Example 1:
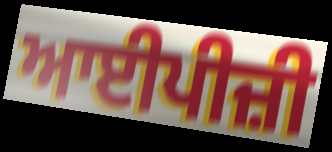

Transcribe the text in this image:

ਆਈਪੀਜ਼ੀ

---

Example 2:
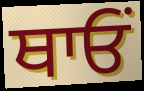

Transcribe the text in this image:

ਥਾਓਂ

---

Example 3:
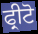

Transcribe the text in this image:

ਫ੍ਰੀਟੋ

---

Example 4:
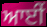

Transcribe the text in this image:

ਆਈਂ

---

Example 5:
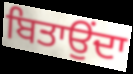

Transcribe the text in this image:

ਬਿਤਾਉਂਦਾ